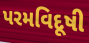
પરમવિદૂષી